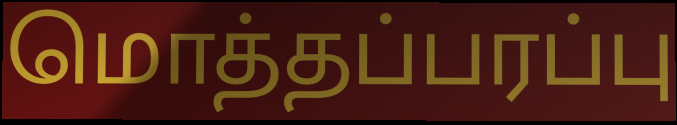
மொத்தப்பரப்பு